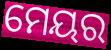
ମେୟର